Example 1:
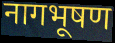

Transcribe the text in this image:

नागभूषण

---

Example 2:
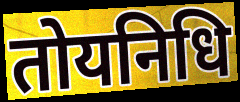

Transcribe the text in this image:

तोयनिधि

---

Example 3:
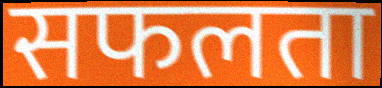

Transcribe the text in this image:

सफलता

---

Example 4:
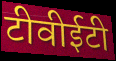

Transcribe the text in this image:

टीवीईटी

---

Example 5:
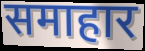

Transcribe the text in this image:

समाहार